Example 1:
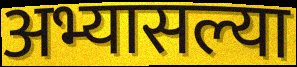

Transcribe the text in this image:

अभ्यासल्या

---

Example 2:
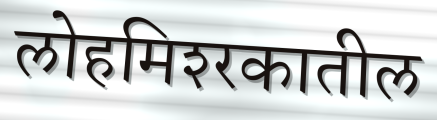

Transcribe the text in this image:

लोहमिश्रकातील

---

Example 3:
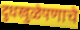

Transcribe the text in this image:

दुधखुळेपणाचे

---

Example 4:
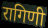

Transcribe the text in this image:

रागिणी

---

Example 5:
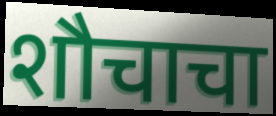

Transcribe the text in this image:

शौचाचा